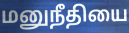
மனுநீதியை